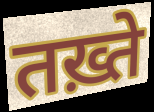
तख़्ते